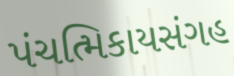
પંચત્મિકાયસંગહ